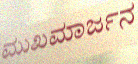
ಮುಖಮಾರ್ಜನ